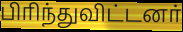
பிரிந்துவிட்டனர்